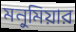
মনুমিয়ার